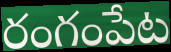
రంగంపేట